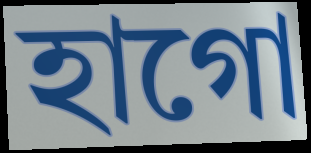
হাগো